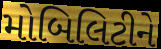
મોબિલિટીને